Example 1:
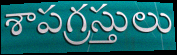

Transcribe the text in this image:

శాపగ్రస్తులు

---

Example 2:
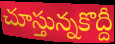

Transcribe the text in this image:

చూస్తున్నకొద్దీ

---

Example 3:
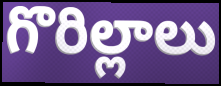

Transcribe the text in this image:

గొరిల్లాలు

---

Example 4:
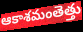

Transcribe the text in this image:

ఆకాశమంతెత్తు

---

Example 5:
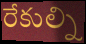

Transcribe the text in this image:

రేకుల్ని